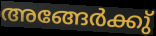
അങ്ങേർക്കു്